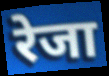
रेजा